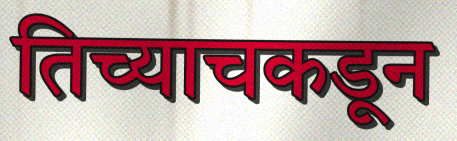
तिच्याचकडून